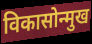
विकासोन्मुख